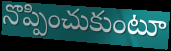
నొప్పించుకుంటూ